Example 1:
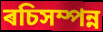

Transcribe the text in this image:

ৰচিসম্পন্ন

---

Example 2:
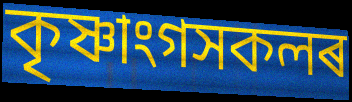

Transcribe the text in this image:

কৃষ্ণাংগসকলৰ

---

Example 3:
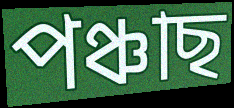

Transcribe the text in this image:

পঞ্চাছ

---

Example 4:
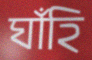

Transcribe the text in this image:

ঘাঁহি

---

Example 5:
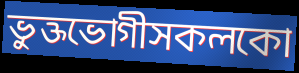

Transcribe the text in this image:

ভুক্তভোগীসকলকো